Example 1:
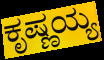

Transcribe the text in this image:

ಕೃಷ್ಣಯ್ಯ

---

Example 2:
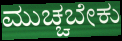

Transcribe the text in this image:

ಮುಚ್ಚಬೇಕು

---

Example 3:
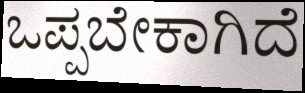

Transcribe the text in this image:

ಒಪ್ಪಬೇಕಾಗಿದೆ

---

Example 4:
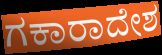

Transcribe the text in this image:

ಗಕಾರಾದೇಶ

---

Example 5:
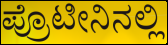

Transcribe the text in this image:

ಪ್ರೊಟೀನಿನಲ್ಲಿ